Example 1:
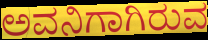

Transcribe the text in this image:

ಅವನಿಗಾಗಿರುವ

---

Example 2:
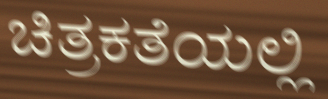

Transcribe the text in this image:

ಚಿತ್ರಕತೆಯಲ್ಲಿ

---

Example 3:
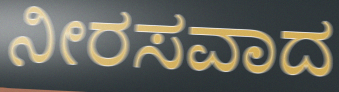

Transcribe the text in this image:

ನೀರಸವಾದ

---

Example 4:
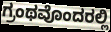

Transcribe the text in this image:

ಗ್ರಂಥವೊಂದರಲ್ಲಿ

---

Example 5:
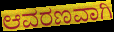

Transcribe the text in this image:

ಆವರಣವಾಗಿ